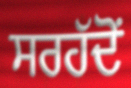
ਸਰਹੱਦੋਂ